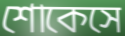
শোকেসে